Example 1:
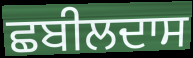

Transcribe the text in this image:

ਛਬੀਲਦਾਸ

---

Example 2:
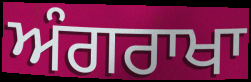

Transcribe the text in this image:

ਅੰਗਰਾਖਾ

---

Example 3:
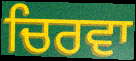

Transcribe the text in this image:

ਚਿਰਵਾ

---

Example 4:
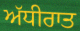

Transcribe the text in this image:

ਅੱਧੀਰਾਤ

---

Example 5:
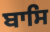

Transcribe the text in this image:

ਬਾਸਿ